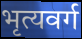
भृत्यवर्ग